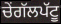
ਚੇਂਗੱਲਪੱਟੂ